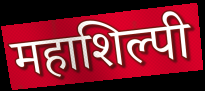
महाशिल्पी